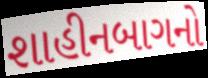
શાહીનબાગનો